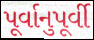
પૂર્વાનુપૂર્વી